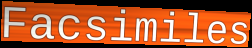
Facsimiles